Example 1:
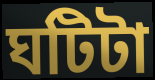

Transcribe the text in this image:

ঘটিটা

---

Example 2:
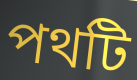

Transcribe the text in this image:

পথটি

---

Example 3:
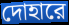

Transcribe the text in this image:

দোহারে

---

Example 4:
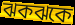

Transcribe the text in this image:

ঝকঝকে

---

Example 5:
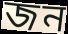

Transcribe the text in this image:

জন